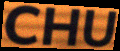
CHU